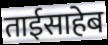
ताईसाहेब